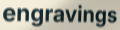
engravings